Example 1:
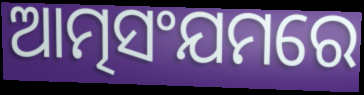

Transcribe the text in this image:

ଆତ୍ମସଂଯମରେ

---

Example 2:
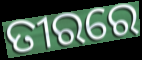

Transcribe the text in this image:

ତୀରରେ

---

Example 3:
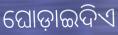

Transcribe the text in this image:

ଘୋଡ଼ାଇଦିଏ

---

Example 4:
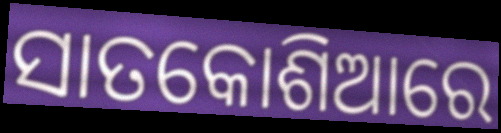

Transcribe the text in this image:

ସାତକୋଶିଆରେ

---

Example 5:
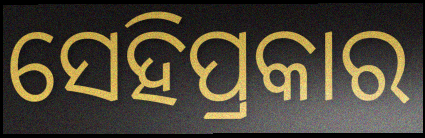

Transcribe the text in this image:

ସେହିପ୍ରକାର